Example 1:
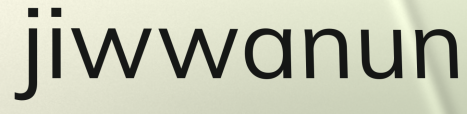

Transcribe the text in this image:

jiwwanun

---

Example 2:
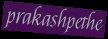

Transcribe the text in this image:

prakashpethe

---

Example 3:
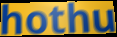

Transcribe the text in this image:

hothu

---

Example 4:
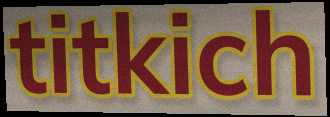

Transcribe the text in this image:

titkich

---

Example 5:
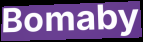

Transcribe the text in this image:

Bomaby